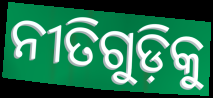
ନୀତିଗୁଡ଼ିକୁ